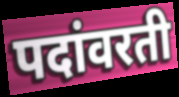
पदांवरती